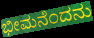
ಭೀಮನೆಂದನು